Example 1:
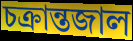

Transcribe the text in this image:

চক্রান্তজাল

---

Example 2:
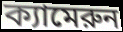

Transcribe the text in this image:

ক্যামেরুন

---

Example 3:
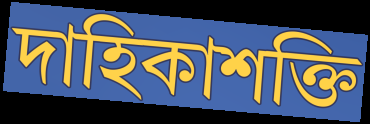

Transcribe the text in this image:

দাহিকাশক্তি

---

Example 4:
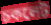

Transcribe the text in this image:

চকলেট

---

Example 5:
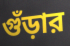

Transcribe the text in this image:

গুঁড়ার